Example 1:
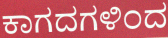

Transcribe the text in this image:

ಕಾಗದಗಳಿಂದ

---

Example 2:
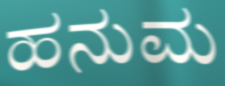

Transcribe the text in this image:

ಹನುಮ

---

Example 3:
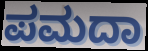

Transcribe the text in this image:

ಪಮದಾ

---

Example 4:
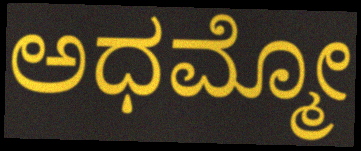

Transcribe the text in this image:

ಅಧಮ್ಮೋ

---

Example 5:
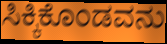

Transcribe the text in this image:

ಸಿಕ್ಕಿಕೊಂಡವನು